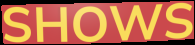
SHOWS